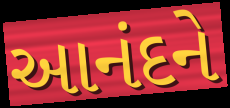
આનંદને